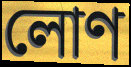
লোণ